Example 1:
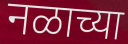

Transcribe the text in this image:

नळाच्या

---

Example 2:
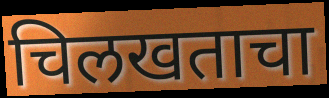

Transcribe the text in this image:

चिलखताचा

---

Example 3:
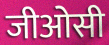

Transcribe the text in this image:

जीओसी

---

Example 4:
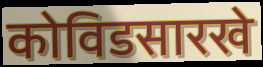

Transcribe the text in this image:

कोविडसारखे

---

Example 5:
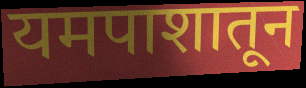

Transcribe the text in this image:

यमपाशातून